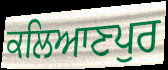
ਕਲਿਆਣਪੁਰ